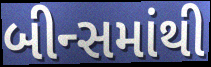
બીન્સમાંથી